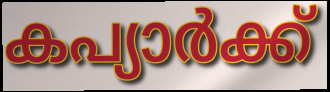
കപ്യാർക്ക്